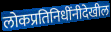
लोकप्रतिनिधींनीदेखील